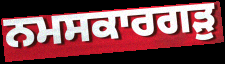
ਨਮਸਕਾਰਗੜੁ